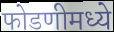
फोडणीमध्ये